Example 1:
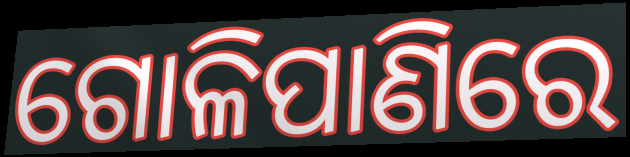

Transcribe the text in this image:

ଗୋଳିପାଣିରେ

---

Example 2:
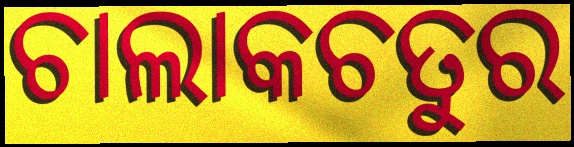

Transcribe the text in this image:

ଚାଲାକଚତୁର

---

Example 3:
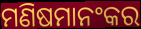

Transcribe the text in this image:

ମଣିଷମାନଂକର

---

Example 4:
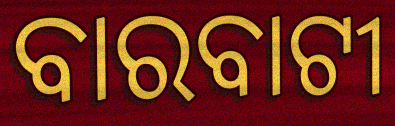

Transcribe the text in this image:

ବାରବାଟୀ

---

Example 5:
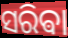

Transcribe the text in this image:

ସରିଵା